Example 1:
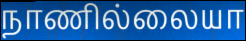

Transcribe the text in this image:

நாணில்லையா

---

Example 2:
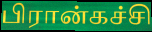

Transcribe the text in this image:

பிரான்கச்சி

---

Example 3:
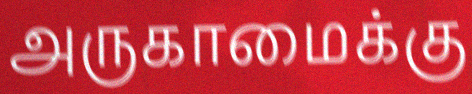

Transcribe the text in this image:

அருகாமைக்கு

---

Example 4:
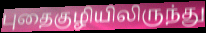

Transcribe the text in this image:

புதைகுழியிலிருந்து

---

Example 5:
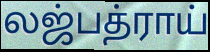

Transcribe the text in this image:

லஜ்பத்ராய்